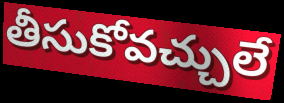
తీసుకోవచ్చులే